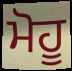
ਮੋਹੂ